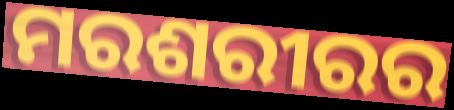
ମରଶରୀରର